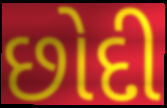
છોદી